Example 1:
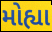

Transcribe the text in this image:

મોહ્યા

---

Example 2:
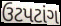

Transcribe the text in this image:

ઉટપટાંગ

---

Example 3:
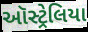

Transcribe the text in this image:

ઑસ્ટ્રેલિયા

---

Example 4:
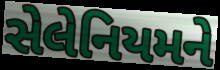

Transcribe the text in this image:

સેલેનિયમને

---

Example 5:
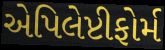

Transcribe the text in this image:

એપિલેપ્ટીફોર્મ